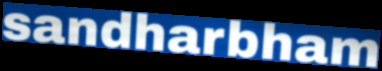
sandharbham